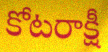
కోటరాక్షీ